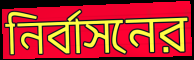
নির্বাসনের